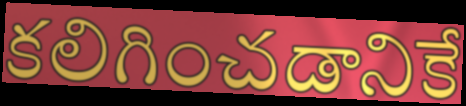
కలిగించడానికే